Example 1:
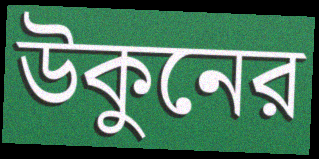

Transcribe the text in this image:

উকুনের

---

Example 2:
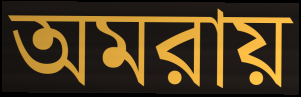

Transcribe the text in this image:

অমরায়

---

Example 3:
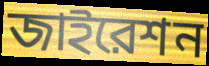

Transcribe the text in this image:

জাইরেশন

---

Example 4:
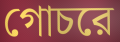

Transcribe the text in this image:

গোচরে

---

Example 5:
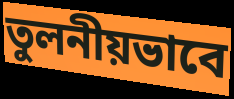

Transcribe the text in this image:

তুলনীয়ভাবে